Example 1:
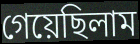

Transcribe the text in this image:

গেয়েছিলাম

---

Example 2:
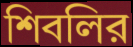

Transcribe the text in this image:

শিবলির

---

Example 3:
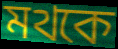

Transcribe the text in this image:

মথকে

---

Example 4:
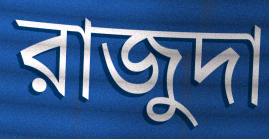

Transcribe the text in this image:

রাজুদা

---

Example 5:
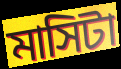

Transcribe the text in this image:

মাসিটা